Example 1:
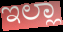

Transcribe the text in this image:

ಇಲ್ಲಾ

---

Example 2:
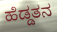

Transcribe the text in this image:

ಹೆಡ್ಡತನ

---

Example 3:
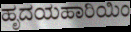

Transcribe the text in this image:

ಹೃದಯಹಾರಿಯಿಂ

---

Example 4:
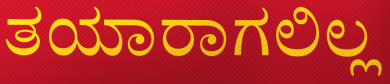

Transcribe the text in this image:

ತಯಾರಾಗಲಿಲ್ಲ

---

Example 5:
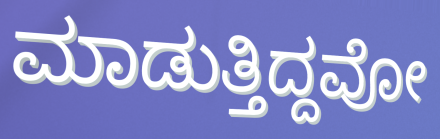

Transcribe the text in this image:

ಮಾಡುತ್ತಿದ್ದವೋ